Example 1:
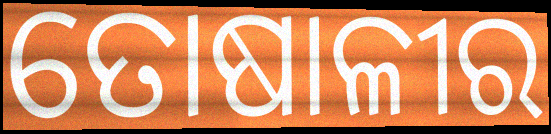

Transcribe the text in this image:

ତୋଷାଳୀର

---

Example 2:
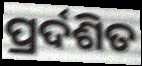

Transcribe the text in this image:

ପ୍ରର୍ଦଶିତ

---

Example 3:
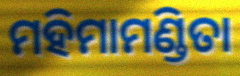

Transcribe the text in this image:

ମହିମାମଣ୍ଡିତା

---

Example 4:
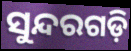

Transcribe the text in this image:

ସୁନ୍ଦରଗଡ଼ି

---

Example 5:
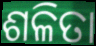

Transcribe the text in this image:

ଶଳିତା